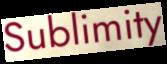
Sublimity